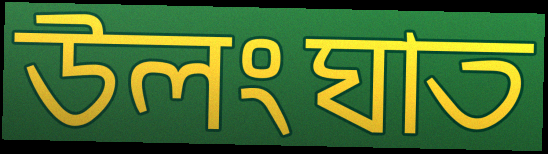
উলংঘাত